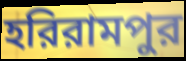
হরিরামপুর